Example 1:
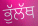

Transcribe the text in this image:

ਭੁੱਲੱਥ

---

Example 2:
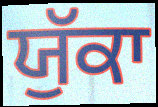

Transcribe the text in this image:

ਯੁੱਕਾ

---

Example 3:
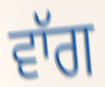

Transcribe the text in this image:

ਵਾੱਗ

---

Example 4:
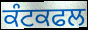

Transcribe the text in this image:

ਕੰਟਕਫਲ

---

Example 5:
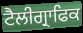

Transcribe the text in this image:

ਟੈਲੀਗ੍ਰਾਫਿਕ